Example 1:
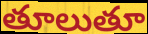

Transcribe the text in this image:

తూలుతూ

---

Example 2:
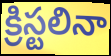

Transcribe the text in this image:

క్రిస్టలినా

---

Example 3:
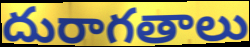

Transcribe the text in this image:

దురాగతాలు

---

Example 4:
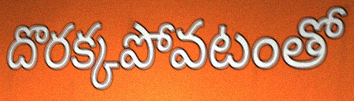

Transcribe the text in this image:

దొరక్కపోవటంతో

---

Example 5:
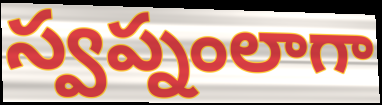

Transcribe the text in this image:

స్వప్నంలాగా